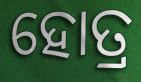
ହୋତ୍ର